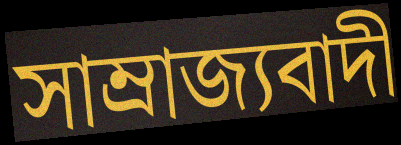
সাম্ৰাজ্যবাদী